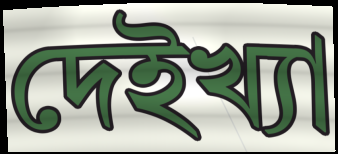
দেইখ্যা